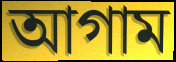
আগাম